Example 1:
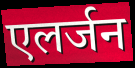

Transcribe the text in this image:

एलर्जन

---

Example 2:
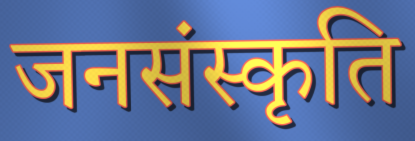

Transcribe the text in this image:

जनसंस्कृति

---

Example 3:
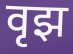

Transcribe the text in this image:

वृझ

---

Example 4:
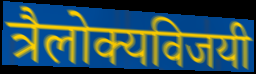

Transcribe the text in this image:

त्रैलोक्यविजयी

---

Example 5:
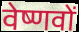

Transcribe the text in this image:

वेष्णवों